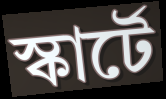
স্কার্টে